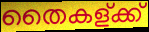
തൈകള്ക്ക്